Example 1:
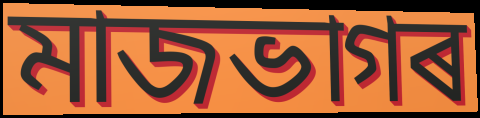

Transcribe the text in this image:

মাজভাগৰ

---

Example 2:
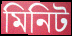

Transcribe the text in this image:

মিনিট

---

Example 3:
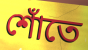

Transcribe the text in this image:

শোঁতে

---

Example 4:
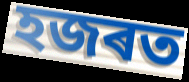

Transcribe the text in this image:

হজৰত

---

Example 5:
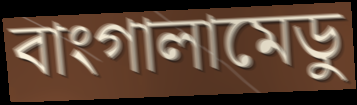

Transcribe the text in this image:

বাংগালামেডু